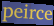
peirce